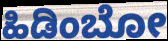
ಹಿಡಿಂಬೋ